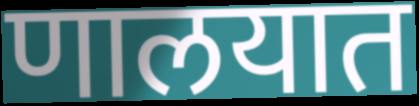
णालयात